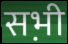
सभ़ी